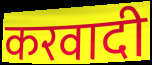
करवादी